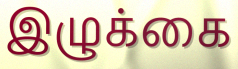
இழுக்கை